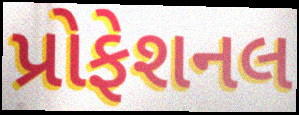
પ્રોફેશનલ